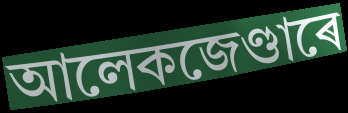
আলেকজেণ্ডাৰে